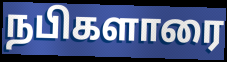
நபிகளாரை